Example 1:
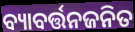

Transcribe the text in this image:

ବ୍ୟାବର୍ତ୍ତନଜନିତ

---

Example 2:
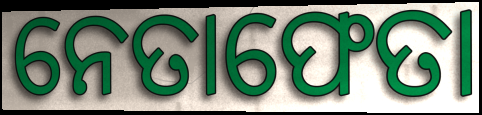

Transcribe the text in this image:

ନେତାଫେତା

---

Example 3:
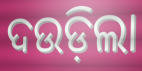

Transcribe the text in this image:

ଦଉଡ଼ିଲା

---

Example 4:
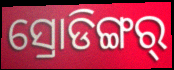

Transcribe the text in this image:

ସ୍ରୋଡିଙ୍ଗର୍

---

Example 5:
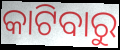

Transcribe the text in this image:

କାଟିବାରୁ